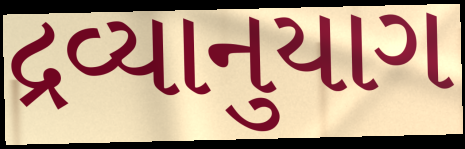
દ્રવ્યાનુયાગ